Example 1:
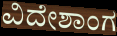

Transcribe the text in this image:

ವಿದೇಶಾಂಗ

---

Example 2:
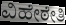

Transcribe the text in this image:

ವಿಹೇಠೇತಿ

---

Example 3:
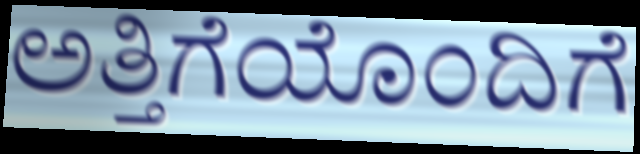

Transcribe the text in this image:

ಅತ್ತಿಗೆಯೊಂದಿಗೆ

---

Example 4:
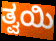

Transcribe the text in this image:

ತ್ವಯಿ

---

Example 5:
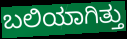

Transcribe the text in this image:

ಬಲಿಯಾಗಿತ್ತು